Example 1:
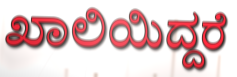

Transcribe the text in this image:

ಖಾಲಿಯಿದ್ದರೆ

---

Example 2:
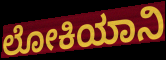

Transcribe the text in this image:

ಲೋಕಿಯಾನಿ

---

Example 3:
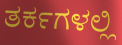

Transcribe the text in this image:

ತರ್ಕಗಳಲ್ಲಿ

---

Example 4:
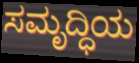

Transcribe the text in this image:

ಸಮೃದ್ಧಿಯ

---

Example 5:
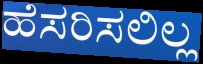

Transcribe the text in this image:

ಹೆಸರಿಸಲಿಲ್ಲ